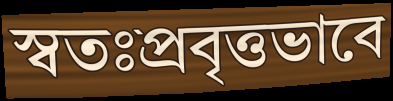
স্বতঃপ্রবৃত্তভাবে